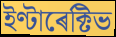
ইণ্টাৰেক্টিভ